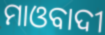
ମାଓବାଦୀ